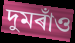
দুমৰাঁও